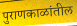
पुराणकाळांतील